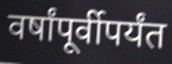
वर्षांपूर्वीपर्यंत